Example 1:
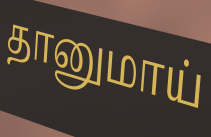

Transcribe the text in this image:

தானுமாய்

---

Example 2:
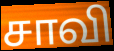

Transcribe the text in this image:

சாவி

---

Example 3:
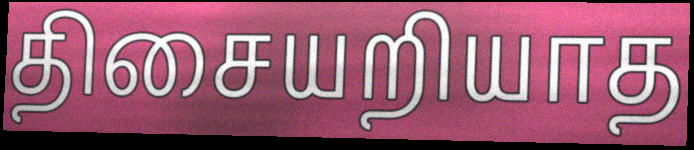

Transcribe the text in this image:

திசையறியாத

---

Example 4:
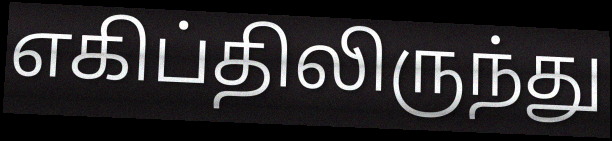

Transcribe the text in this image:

எகிப்திலிருந்து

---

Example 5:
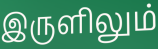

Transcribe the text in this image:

இருளிலும்